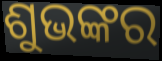
ଶୁଭଙ୍କର